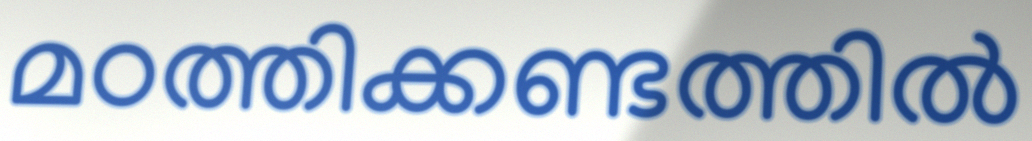
മഠത്തിക്കണ്ടത്തിൽ